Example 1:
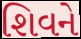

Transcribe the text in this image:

શિવને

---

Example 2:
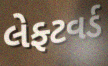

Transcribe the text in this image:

લેફ્ટવર્ડ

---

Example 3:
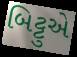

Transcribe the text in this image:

બિટ્ટુએ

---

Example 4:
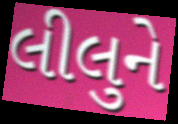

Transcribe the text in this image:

લીલુને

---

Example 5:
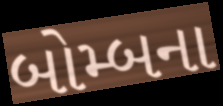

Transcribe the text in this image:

બોમ્બના